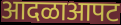
आदळाआपट